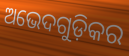
ଅଭେଦଗୁଡ଼ିକର